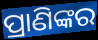
ପ୍ରାଣିଙ୍କର